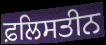
ਫ਼ਲਿਸਤੀਨ